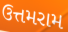
ઉત્તમરામ